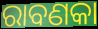
ରାବଣକା